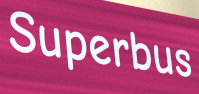
Superbus